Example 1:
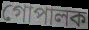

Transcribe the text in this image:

গোপালক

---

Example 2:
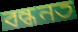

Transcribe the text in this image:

বন্ধনত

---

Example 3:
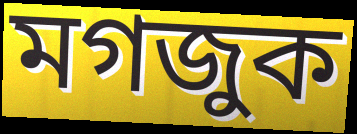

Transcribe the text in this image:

মগজুক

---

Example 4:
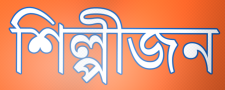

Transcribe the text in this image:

শিল্পীজন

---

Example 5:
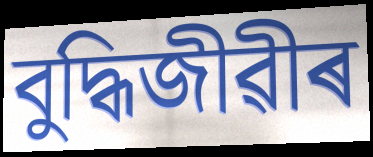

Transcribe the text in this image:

বুদ্ধিজীৱীৰ